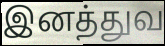
இனத்துவ